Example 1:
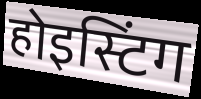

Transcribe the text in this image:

होइस्टिंग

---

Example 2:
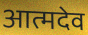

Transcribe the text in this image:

आत्मदेव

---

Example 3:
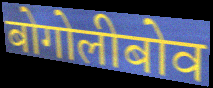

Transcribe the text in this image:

बोगोलीबोव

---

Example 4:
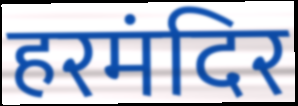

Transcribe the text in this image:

हरमंदिर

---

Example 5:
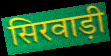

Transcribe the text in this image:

सिरवाड़ी